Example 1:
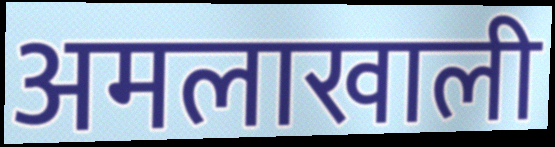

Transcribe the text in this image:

अमलाखाली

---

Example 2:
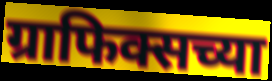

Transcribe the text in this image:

ग्राफिक्सच्या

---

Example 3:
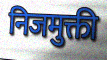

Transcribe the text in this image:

निजमुक्ती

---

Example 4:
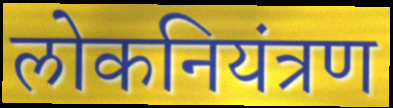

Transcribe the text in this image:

लोकनियंत्रण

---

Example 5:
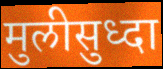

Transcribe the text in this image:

मुलीसुध्दा